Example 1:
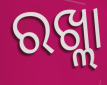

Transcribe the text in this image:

ରଖ୍ଲା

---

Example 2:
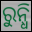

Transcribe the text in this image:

ରୁନ୍ଧି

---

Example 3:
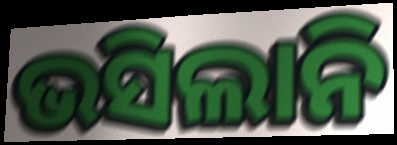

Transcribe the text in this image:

ଭସିଲାନି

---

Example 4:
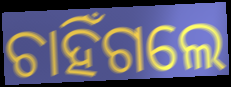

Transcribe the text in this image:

ଚାହିଁଗଲେ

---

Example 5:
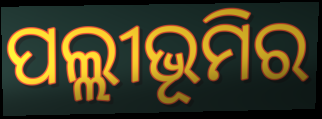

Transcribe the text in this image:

ପଲ୍ଲୀଭୂମିର